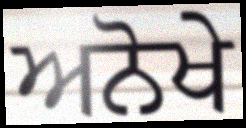
ਅਨੋਖੇ